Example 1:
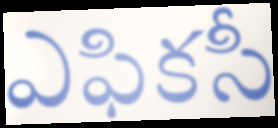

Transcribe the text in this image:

ఎఫికసీ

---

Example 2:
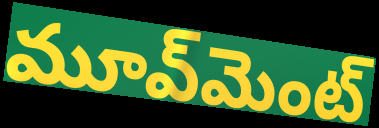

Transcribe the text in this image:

మూవ్‌మెంట్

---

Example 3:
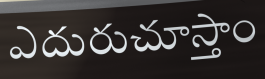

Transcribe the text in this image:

ఎదురుచూస్తాం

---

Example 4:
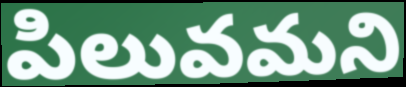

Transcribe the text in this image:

పిలువమని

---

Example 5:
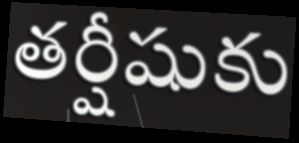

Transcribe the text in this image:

తర్షీషుకు